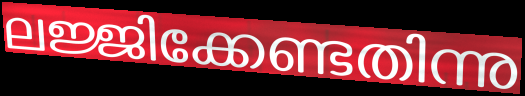
ലജ്ജിക്കേണ്ടതിന്നു